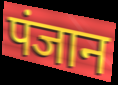
पंजान